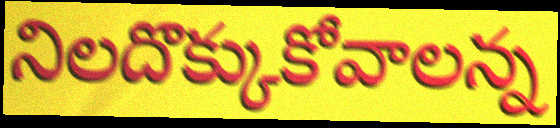
నిలదొక్కుకోవాలన్న